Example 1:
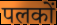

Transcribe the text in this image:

पलकों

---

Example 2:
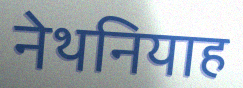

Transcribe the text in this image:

नेथनियाह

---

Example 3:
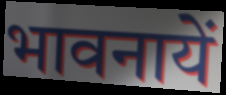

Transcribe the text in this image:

भावनायें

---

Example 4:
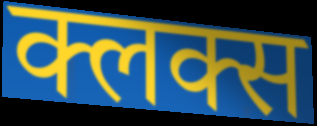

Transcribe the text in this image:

क्लक्स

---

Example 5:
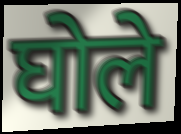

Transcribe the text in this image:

घोले